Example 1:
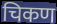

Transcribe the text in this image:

चिकण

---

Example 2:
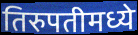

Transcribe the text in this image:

तिरुपतीमध्ये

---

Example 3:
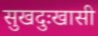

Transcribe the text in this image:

सुखदुःखासी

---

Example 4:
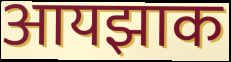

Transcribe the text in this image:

आयझाक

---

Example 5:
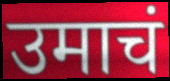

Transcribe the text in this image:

उमाचं